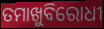
ତମାଖୁବିରୋଧୀ